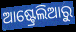
ଆଷ୍ଟ୍ରେଲିଆରୁ